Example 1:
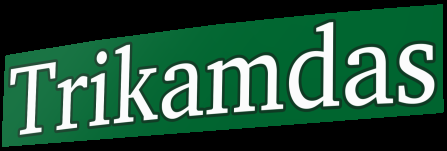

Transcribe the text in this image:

Trikamdas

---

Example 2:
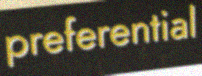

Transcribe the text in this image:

preferential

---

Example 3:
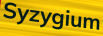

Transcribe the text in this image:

Syzygium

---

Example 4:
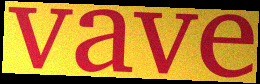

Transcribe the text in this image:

vave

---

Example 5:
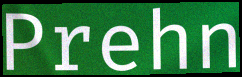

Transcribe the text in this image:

Prehn